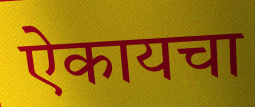
ऐकायचा